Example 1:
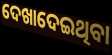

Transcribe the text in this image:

ଦେଖାଦେଇଥିବା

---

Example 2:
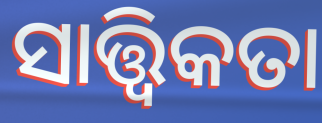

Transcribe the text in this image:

ସାତ୍ତ୍ବିକତା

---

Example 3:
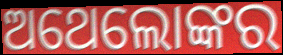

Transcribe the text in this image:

ଅଥେଲୋଙ୍କର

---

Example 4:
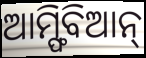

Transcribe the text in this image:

ଆମ୍ଫିବିଆନ୍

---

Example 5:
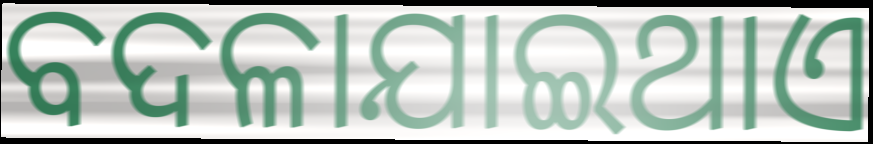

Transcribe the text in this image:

ବଦଳାଯାଇଥାଏ